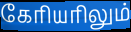
கேரியரிலும்